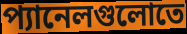
প্যানেলগুলোতে